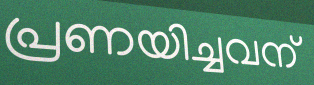
പ്രണയിച്ചവന്